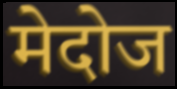
मेदोज